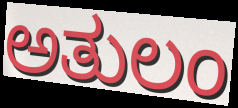
ಅತುಲಂ